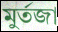
মুর্তজা